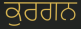
ਕੁਰਗਨ